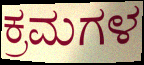
ಕ್ರಮಗಳ